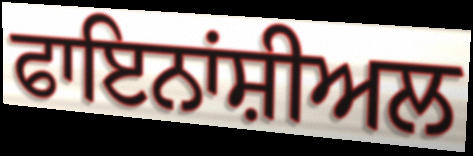
ਫਾਇਨਾਂਸ਼ੀਅਲ